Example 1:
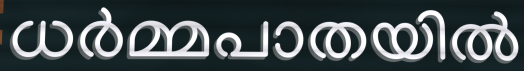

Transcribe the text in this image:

ധർമ്മപാതയിൽ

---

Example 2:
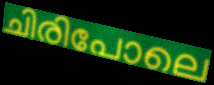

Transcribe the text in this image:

ചിരിപോലെ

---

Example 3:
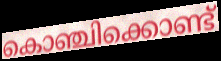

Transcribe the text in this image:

കൊഞ്ചിക്കൊണ്ട്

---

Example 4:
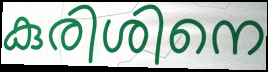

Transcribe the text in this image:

കുരിശിനെ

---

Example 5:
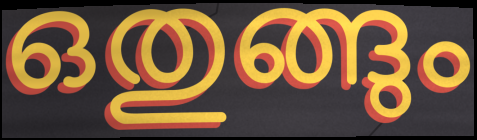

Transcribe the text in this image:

ഒതുങ്ങും